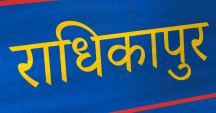
राधिकापुर